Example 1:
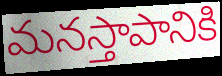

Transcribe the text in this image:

మనస్తాపానికి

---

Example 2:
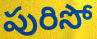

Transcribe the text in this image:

పురిసో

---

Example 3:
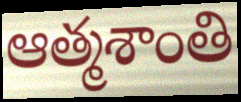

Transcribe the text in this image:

ఆత్మశాంతి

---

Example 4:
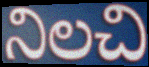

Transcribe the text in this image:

నిలచి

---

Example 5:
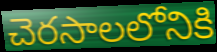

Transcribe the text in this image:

చెరసాలలోనికి